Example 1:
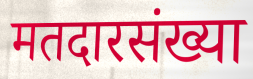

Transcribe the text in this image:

मतदारसंख्या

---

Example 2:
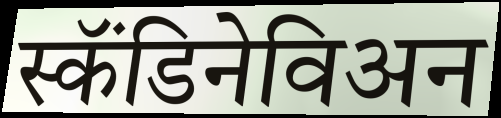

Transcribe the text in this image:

स्कॅंडिनेविअन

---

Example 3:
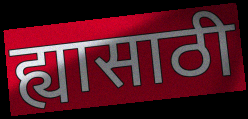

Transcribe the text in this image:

ह्यासाठी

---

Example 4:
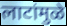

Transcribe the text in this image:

लाटांमुळे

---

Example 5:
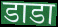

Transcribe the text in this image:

डाडा